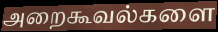
அறைகூவல்களை